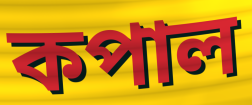
কপাল